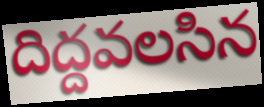
దిద్దవలసిన